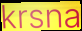
krsna